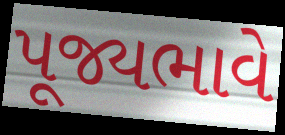
પૂજ્યભાવે